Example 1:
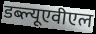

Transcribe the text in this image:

डब्ल्यूएवीएल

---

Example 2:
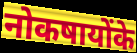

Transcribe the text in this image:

नोकषायोंके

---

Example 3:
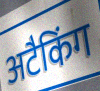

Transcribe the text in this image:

अटैकिंग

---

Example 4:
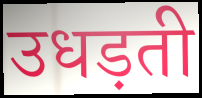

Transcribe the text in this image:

उधड़ती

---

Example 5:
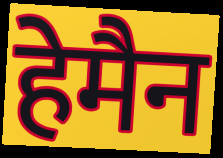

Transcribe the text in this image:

हेमैन